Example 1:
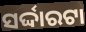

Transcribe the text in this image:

ସର୍ଦ୍ଦାରଟା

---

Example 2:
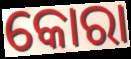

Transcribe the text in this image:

କୋରା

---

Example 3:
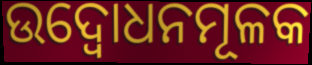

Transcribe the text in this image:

ଉଦ୍ବୋଧନମୂଳକ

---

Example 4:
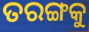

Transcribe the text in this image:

ତରଙ୍ଗକୁ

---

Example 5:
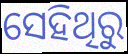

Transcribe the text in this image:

ସେହିଥିରୁ